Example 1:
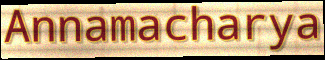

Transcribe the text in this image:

Annamacharya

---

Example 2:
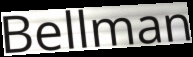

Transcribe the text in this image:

Bellman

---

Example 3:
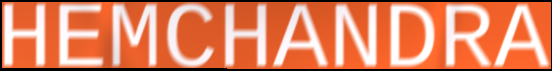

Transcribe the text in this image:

HEMCHANDRA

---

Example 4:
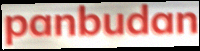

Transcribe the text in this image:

panbudan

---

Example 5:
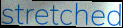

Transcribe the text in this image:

stretched